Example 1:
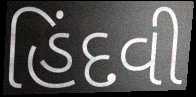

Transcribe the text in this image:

હિંદવી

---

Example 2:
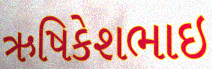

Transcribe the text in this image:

ઋષિકેશભાઇ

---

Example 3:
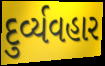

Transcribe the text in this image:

દુર્વ્યવહાર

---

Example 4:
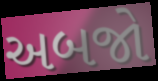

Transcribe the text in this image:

અબજો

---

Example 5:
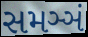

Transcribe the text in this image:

સમઞ્ઞં